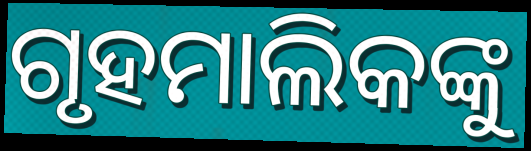
ଗୃହମାଲିକଙ୍କୁ